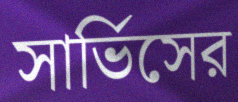
সার্ভিসের